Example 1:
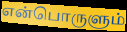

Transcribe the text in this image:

என்பொருளும்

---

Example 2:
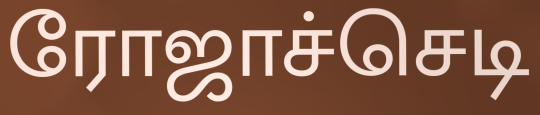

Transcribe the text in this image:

ரோஜாச்செடி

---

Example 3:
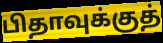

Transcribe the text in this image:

பிதாவுக்குத்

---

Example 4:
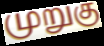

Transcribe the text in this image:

முறுகு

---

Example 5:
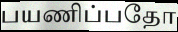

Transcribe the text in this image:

பயணிப்பதோ